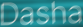
Dasha